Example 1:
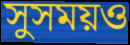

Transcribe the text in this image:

সুসময়ও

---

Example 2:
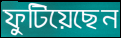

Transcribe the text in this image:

ফুটিয়েছেন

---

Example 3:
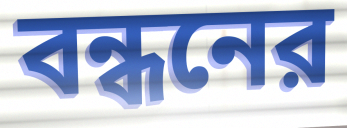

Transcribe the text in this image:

বন্ধনের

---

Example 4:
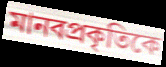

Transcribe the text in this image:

মানবপ্রকৃতিকে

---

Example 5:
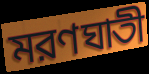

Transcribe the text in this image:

মরণঘাতী